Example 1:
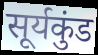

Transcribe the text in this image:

सूर्यकुंड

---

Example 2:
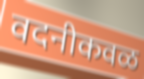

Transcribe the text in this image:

वदनीकवळ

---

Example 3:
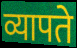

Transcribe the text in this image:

व्यापते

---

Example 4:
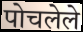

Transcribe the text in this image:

पोचलेले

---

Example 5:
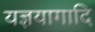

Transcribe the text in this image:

यज्ञयागादि